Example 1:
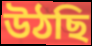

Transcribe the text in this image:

উঠছি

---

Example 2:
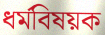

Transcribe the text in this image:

ধর্মবিষয়ক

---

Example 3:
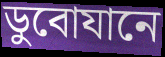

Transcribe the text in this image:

ডুবোযানে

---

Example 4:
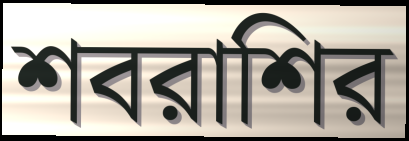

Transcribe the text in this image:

শবরাশির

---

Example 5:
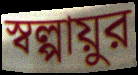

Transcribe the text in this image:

স্বল্পায়ুর